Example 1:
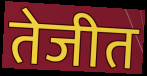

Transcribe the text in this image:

तेजीत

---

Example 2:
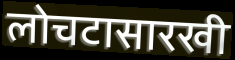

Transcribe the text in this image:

लोचटासारखी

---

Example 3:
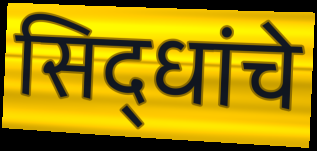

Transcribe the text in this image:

सिद्धांचे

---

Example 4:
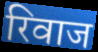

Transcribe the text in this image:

रिवाज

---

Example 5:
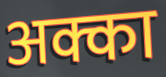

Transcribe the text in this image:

अक्का